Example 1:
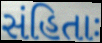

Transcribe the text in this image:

સંહિતાઃ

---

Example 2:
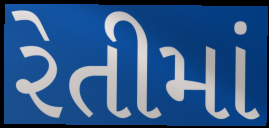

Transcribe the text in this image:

રેતીમાં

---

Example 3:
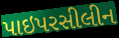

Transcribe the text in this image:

પાઇપરસીલીન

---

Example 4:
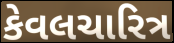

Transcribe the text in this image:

કેવલચારિત્ર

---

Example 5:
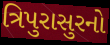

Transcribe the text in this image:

ત્રિપુરાસુરનો